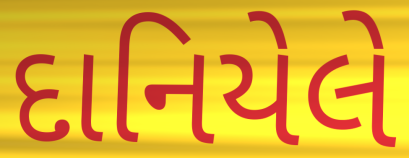
દાનિયેલે